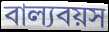
বাল্যবয়স